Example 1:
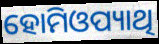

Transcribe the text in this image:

ହୋମିଓପ୍ୟାଥି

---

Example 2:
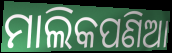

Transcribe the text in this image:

ମାଲିକପଣିଆ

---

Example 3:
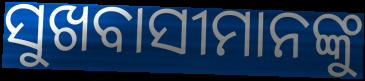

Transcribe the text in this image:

ସୁଖବାସୀମାନଙ୍କୁ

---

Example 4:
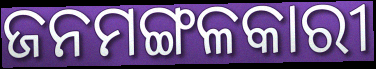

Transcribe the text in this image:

ଜନମଙ୍ଗଳକାରୀ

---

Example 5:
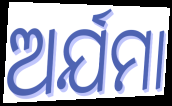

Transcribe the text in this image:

ଅର୍ଯମା